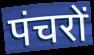
पंचरों